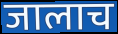
जालाच